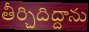
తీర్చిదిద్దాను